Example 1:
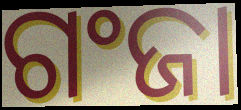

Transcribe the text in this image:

ଗଂଜା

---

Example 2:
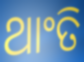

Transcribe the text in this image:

ଥାଂତି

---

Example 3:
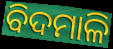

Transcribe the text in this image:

ବିଦମାଳି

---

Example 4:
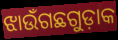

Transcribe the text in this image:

ଝାଉଁଗଛଗୁଡ଼ାକ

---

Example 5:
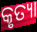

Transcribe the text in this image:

କୃତ୍ୟା